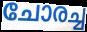
ചോരച്ച